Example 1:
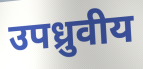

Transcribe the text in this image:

उपध्रुवीय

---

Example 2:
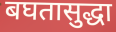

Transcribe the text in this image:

बघतासुद्धा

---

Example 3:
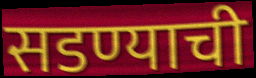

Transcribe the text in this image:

सडण्याची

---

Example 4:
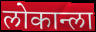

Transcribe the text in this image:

लोकान्ला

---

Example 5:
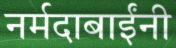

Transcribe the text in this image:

नर्मदाबाईंनी